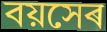
বয়সেৰ